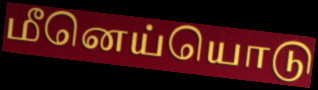
மீனெய்யொடு